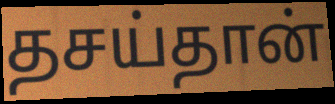
தசய்தான்